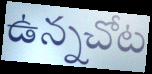
ఉన్నచోట